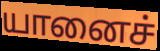
யானைச்